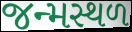
જન્મસ્થળ